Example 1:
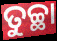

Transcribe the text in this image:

ତୁଚ୍ଛା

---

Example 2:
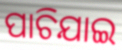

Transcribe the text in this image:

ପାଚିଯାଇ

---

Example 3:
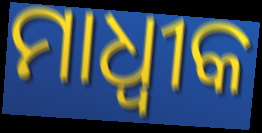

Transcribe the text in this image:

ମାଧ୍ୱୀକ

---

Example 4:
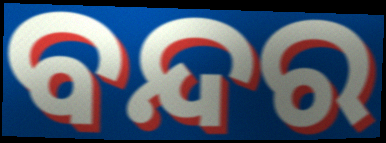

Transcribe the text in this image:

ବନ୍ଦର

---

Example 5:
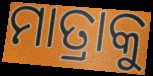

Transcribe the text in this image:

ମାତ୍ରାକୁ